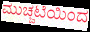
ಮುಚ್ಚಟೆಯಿಂದ